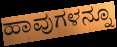
ಹಾವುಗಳನ್ನೂ